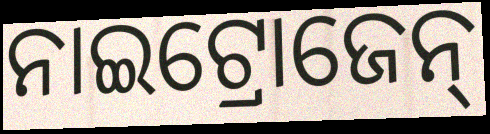
ନାଇଟ୍ରୋଜେନ୍